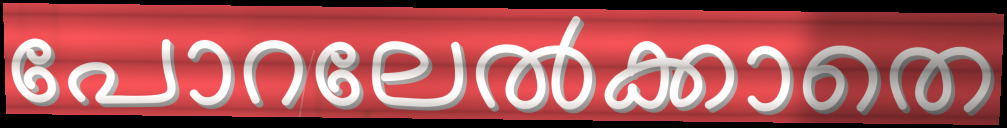
പോറലേൽക്കാതെ